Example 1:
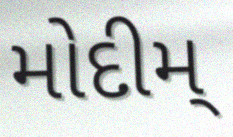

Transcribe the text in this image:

મોદીમ્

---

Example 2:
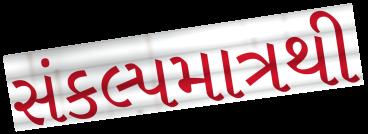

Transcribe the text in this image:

સંકલ્પમાત્રથી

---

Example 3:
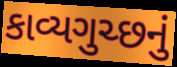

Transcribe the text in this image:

કાવ્યગુચ્છનું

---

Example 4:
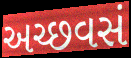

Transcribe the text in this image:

અચ્છવસં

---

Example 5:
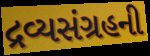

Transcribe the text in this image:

દ્રવ્યસંગ્રહની